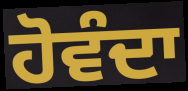
ਹੋਵੰਦਾ